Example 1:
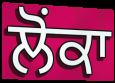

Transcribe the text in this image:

ਲੋਂਕਾ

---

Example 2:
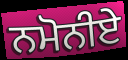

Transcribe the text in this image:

ਨਮੋਨੀਏ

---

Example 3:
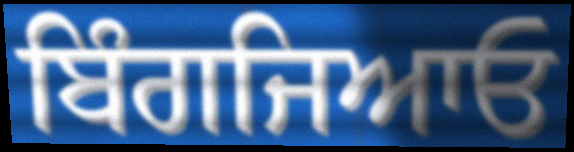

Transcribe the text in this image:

ਬਿੰਗਜਿਆਓ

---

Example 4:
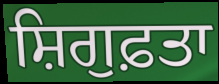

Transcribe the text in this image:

ਸ਼ਿਗੁਫ਼ਤਾ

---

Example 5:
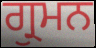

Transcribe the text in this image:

ਗ੍ਰੁਮਨ